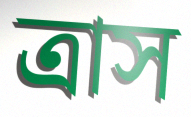
ত্রাস